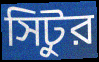
সিটুর